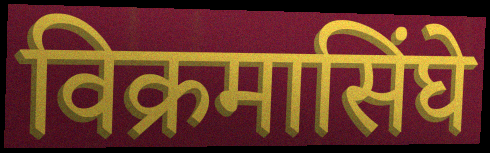
विक्रमासिंघे